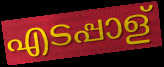
എടപ്പാള്